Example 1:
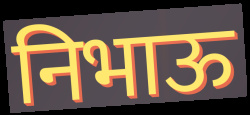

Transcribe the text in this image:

निभाऊ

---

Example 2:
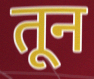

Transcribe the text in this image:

तून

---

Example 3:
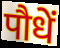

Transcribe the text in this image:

पौधें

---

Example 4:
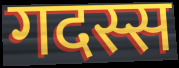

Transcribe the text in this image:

गदस्स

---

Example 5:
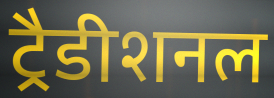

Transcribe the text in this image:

ट्रैडीशनल